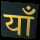
याँ